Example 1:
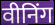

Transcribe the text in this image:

वीनिंग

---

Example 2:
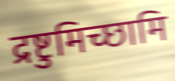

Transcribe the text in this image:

द्रष्टुमिच्छामि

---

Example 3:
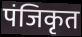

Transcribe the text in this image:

पंजिकृत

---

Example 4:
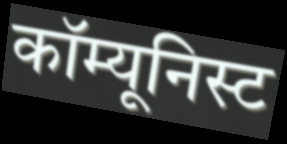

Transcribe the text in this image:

कॉम्यूनिस्ट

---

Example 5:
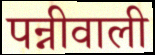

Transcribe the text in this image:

पन्नीवाली